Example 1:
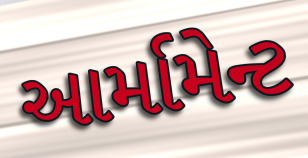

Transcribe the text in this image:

આર્મામેન્ટ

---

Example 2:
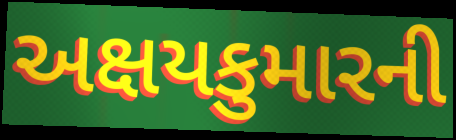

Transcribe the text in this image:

અક્ષયકુમારની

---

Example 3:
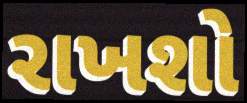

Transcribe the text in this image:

રાખશો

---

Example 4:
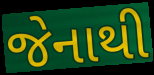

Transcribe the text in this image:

જેનાથી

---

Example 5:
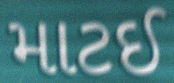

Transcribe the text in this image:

માટઈ